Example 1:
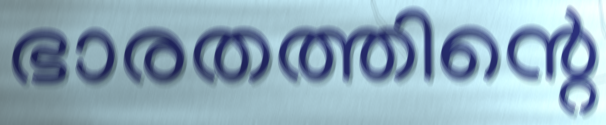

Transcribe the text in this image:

ഭാരതത്തിന്റെ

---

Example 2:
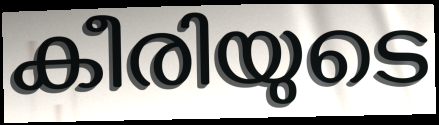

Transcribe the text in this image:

കീരിയുടെ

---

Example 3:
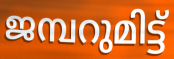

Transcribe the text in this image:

ജമ്പറുമിട്ട്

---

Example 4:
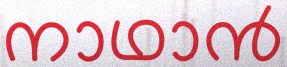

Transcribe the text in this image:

നാഥാൻ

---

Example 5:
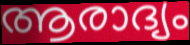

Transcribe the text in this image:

ആരാദ്യം